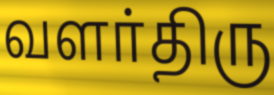
வளர்திரு